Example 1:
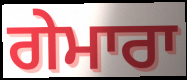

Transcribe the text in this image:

ਗੇਮਾਰਾ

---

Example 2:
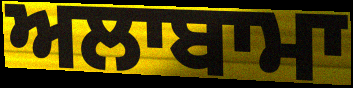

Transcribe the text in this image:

ਅਲਾਬਾਮਾ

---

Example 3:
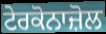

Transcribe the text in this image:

ਟੇਰਕੋਨਾਜ਼ੋਲ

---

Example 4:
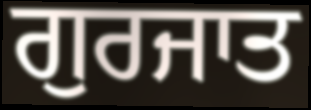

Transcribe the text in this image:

ਗੁਰਜਾਤ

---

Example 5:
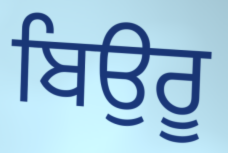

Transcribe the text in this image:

ਬਿਉਰੂ